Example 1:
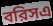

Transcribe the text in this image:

বরিসএ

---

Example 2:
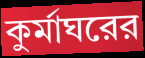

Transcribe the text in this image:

কুর্মাঘরের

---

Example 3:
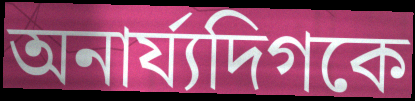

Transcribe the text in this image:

অনার্য্যদিগকে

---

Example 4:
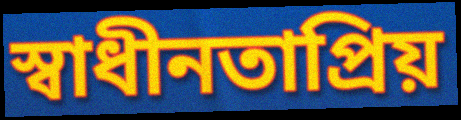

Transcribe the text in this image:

স্বাধীনতাপ্রিয়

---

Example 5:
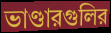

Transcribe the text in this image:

ভাণ্ডারগুলির